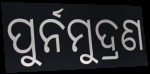
ପୁର୍ନମୁଦ୍ରଣ